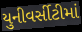
યુનીવર્સીટીમાં